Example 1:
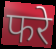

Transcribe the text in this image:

फरे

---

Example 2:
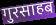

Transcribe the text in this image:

गुरसाहब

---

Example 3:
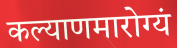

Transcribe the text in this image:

कल्याणमारोग्यं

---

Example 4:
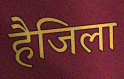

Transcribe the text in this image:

हैजिला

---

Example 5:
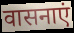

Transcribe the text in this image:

वासनाएं